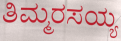
ತಿಮ್ಮರಸಯ್ಯ